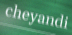
cheyandi